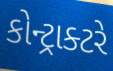
કોન્ટ્રાક્ટરે